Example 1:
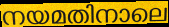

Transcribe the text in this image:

നയമതിനാലെ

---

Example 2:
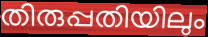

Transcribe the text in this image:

തിരുപ്പതിയിലും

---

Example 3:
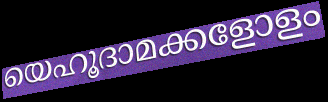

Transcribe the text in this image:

യെഹൂദാമക്കളോളം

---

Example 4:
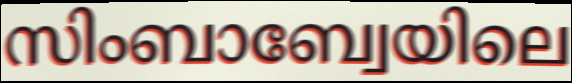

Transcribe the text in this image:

സിംബാബ്വേയിലെ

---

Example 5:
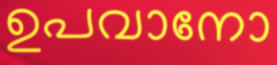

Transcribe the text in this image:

ഉപവാനോ